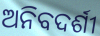
ଅନିବଦର୍ଶୀ